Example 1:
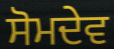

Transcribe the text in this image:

ਸੋਮਦੇਵ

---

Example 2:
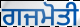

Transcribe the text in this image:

ਗਜਮੋਤੀ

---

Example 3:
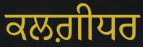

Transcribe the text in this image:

ਕਲਗ਼ੀਧਰ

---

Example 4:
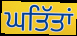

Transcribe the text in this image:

ਘਤਿੱਤਾਂ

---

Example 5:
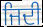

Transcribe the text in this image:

ਜਿਦੀ